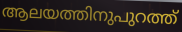
ആലയത്തിനുപുറത്ത്